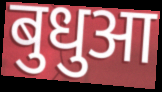
बुधुआ